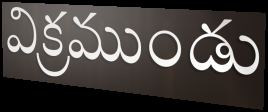
విక్రముండు